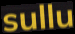
sullu